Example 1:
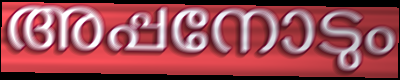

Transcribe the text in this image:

അപ്പനോടും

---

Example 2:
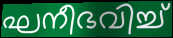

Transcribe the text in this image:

ഘനീഭവിച്ച്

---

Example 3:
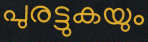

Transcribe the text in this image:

പുരട്ടുകയും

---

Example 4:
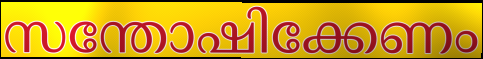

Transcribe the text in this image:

സന്തോഷിക്കേണം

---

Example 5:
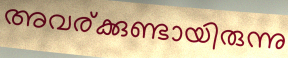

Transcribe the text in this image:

അവര്ക്കുണ്ടായിരുന്നു